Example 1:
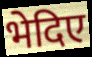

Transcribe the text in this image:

भेदिए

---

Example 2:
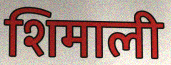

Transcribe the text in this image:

शिमाली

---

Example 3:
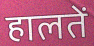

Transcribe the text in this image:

हालतें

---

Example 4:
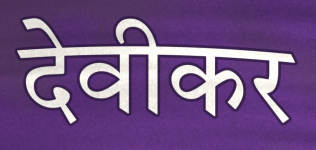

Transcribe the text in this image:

देवीकर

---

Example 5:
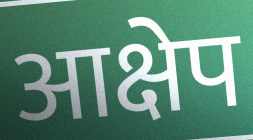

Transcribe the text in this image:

आक्षेप